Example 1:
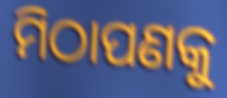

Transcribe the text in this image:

ମିଠାପଣକୁ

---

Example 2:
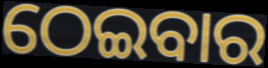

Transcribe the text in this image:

ଠେଇବାର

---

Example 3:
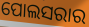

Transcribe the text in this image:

ପୋଲସରାର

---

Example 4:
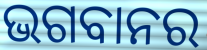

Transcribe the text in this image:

ଭଗବାନର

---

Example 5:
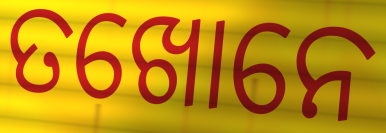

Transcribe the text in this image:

ତଖୋନେ